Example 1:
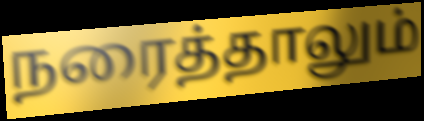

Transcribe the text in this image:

நரைத்தாலும்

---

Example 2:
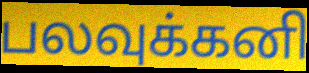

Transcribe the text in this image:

பலவுக்கனி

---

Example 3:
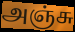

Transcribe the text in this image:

அஞ்சு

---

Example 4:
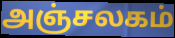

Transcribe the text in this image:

அஞ்சலகம்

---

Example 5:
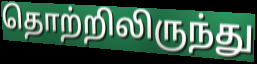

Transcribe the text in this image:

தொற்றிலிருந்து